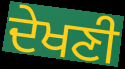
ਦੇਖਣੀ